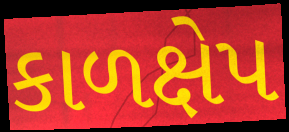
કાળક્ષેપ